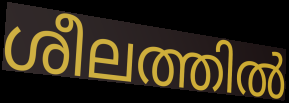
ശീലത്തിൽ